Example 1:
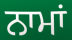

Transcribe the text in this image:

ਨਾਮਾਂ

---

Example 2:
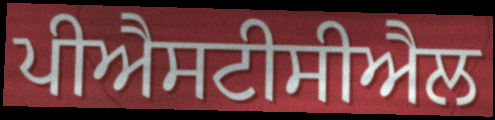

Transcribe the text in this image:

ਪੀਐਸਟੀਸੀਐਲ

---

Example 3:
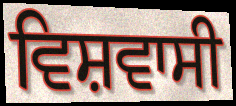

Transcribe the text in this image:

ਵਿਸ਼ਵਾਸੀ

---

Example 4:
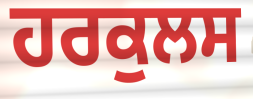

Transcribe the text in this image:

ਹਰਕੁਲਸ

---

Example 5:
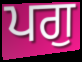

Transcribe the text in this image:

ਪਗੁ